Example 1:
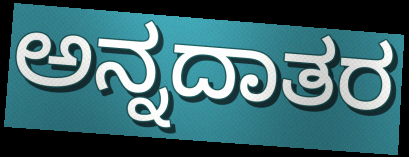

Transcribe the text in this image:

ಅನ್ನದಾತರ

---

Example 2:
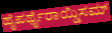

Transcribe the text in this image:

ಹೈಪರ್ಥೈರಾಯ್ಡಿಸಮ್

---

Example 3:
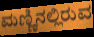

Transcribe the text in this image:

ಮಣ್ಣಿನಲ್ಲಿರುವ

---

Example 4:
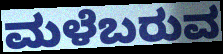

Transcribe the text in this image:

ಮಳೆಬರುವ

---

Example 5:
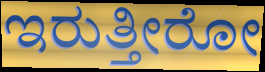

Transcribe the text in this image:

ಇರುತ್ತೀರೋ